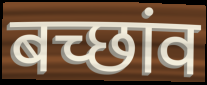
बच्छांव